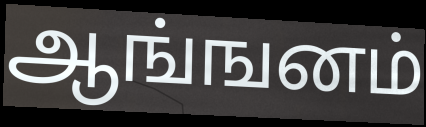
ஆங்ஙனம்